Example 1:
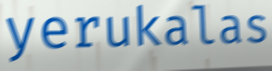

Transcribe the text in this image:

yerukalas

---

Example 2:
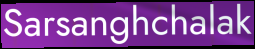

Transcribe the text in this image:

Sarsanghchalak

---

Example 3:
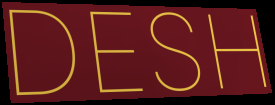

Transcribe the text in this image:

DESH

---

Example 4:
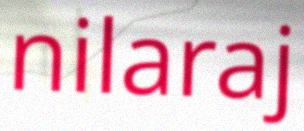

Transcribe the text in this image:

nilaraj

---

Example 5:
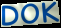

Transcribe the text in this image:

DOK